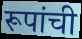
रूपांची